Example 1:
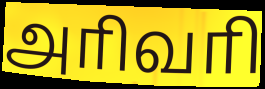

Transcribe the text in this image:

அரிவரி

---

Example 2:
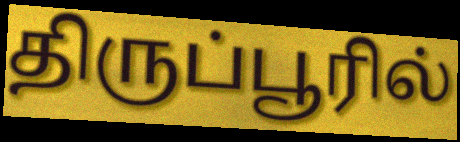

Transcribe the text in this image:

திருப்பூரில்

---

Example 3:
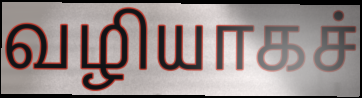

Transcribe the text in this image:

வழியாகச்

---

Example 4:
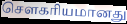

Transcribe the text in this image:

சௌகரியமானது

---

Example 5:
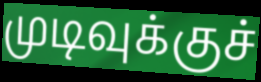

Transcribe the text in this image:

முடிவுக்குச்